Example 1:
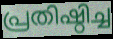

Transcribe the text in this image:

പ്രതിഷ്ഠിച്ച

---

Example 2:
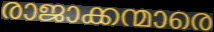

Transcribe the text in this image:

രാജാക്കന്മാരെ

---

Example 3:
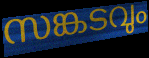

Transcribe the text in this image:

സങ്കടവും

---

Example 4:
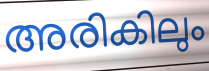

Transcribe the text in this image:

അരികിലും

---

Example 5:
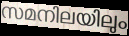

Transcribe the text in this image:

സമനിലയിലും